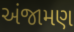
અંજામણ